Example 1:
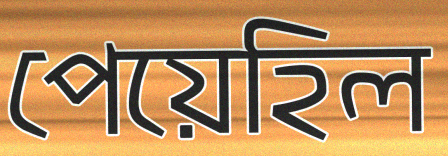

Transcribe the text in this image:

পেয়েহিল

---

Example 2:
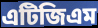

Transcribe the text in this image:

এটিজিএম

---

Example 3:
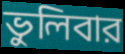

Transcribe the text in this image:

ভুলিবার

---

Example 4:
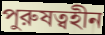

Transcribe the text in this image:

পুরুষত্বহীন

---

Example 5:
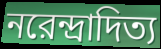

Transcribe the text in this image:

নরেন্দ্রাদিত্য